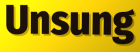
Unsung